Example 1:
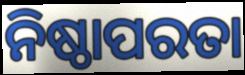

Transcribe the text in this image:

ନିଷ୍ଠାପରତା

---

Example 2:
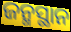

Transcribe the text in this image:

ଜନ୍ମସ୍ଥାନ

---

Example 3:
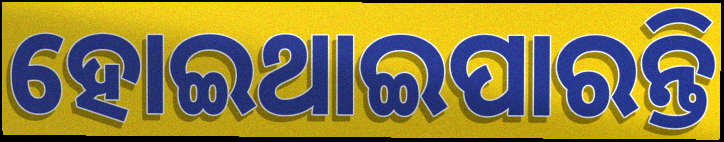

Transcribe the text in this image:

ହୋଇଥାଇପାରନ୍ତି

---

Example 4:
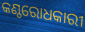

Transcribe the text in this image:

କଣ୍ଠରୋଧକାରୀ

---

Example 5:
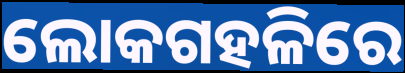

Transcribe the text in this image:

ଲୋକଗହଳିରେ